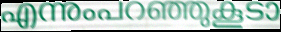
എന്നുംപറഞ്ഞുകൂടാ